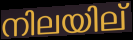
നിലയില്